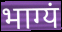
भाग्यं